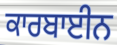
ਕਾਰਬਾਈਨ